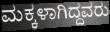
ಮಕ್ಕಳಾಗಿದ್ದವರು